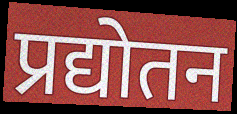
प्रद्योतन